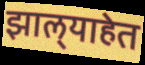
झाल्याहेत